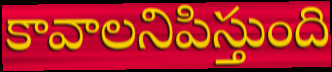
కావాలనిపిస్తుంది